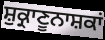
ਸ਼ੁਕ੍ਰਾਣੂਨਾਸ਼ਕਾਂ